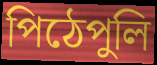
পিঠেপুলি